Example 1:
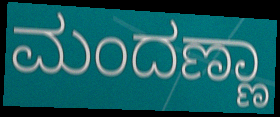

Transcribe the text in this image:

ಮಂದಣ್ಣಾ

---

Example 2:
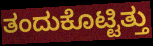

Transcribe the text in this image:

ತಂದುಕೊಟ್ಟಿತ್ತು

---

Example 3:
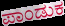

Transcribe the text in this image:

ಪಾಂಡುಕ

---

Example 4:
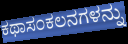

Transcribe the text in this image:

ಕಥಾಸಂಕಲನಗಳನ್ನು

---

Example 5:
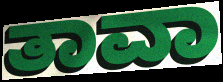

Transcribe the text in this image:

ತಾವಾ